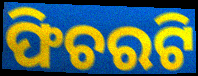
ଫିଚରଟି